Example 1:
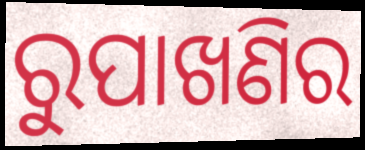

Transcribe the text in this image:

ରୁପାଖଣିର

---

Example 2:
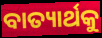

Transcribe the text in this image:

ବାତ୍ୟାର୍ଥକୁ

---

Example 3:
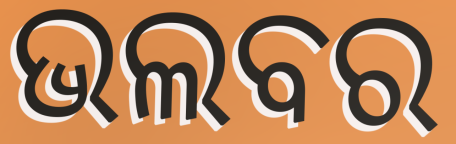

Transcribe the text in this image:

ଭଲବର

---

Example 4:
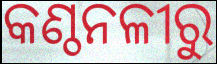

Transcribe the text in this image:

କଣ୍ଠନଳୀରୁ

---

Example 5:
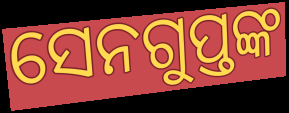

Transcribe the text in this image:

ସେନଗୁପ୍ତଙ୍କ